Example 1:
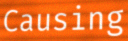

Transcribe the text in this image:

Causing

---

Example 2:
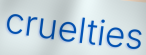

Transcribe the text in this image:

cruelties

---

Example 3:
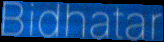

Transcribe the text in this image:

Bidhatar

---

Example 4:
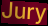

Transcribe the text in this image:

Jury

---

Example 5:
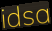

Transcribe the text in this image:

idsa